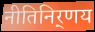
नीतिनिर्णय